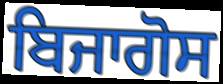
ਬਿਜਾਗੋਸ